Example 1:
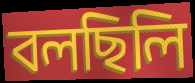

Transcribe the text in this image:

বলছিলি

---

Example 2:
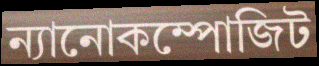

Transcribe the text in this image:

ন্যানোকম্পোজিট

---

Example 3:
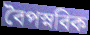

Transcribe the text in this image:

বৈপস্নবিক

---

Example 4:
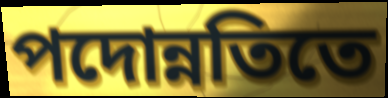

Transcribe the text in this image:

পদোন্নতিতে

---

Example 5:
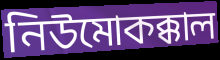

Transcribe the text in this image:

নিউমোকক্কাল